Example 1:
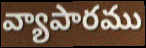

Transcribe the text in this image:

వ్యాపారము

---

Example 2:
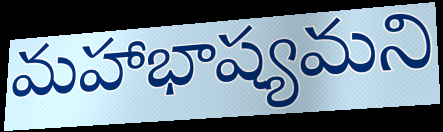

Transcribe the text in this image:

మహాభాష్యమని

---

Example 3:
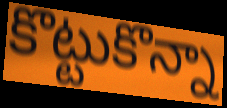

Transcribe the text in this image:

కొట్టుకొన్నా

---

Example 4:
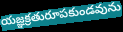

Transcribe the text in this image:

యజ్ఞక్రతురూపకుండవును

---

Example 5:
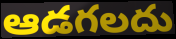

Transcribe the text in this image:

ఆడగలదు